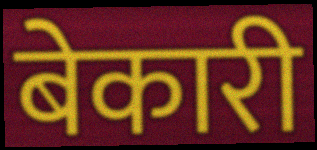
बेकारी